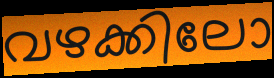
വഴക്കിലോ